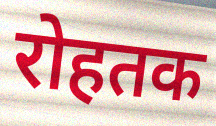
रोहतक